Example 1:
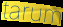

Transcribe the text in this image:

tarum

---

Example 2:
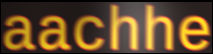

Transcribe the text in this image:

aachhe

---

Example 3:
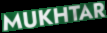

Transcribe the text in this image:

MUKHTAR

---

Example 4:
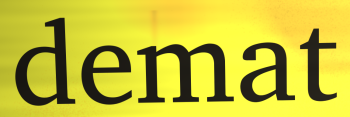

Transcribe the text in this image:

demat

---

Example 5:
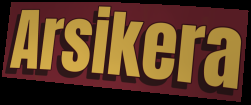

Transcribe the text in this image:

Arsikera